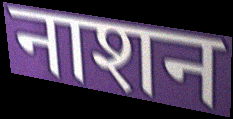
नाशन